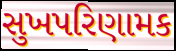
સુખપરિણામક